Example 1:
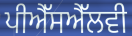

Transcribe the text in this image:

ਪੀਐੱਸਐੱਲਵੀ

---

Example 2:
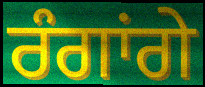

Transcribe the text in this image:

ਰੰਗਾਂਗੇ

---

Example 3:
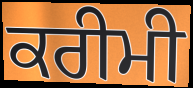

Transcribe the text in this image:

ਕਰੀਮੀ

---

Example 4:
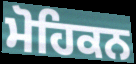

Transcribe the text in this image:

ਮੋਹਿਕਨ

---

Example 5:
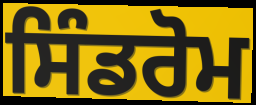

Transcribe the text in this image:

ਸਿੰਡਰੋਮ